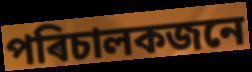
পৰিচালকজনে